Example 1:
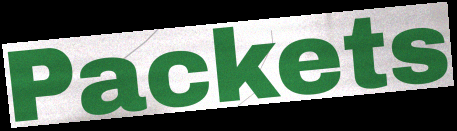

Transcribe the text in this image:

Packets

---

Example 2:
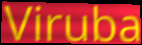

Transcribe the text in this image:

Viruba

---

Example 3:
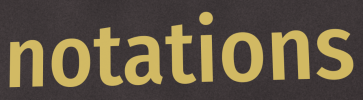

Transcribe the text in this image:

notations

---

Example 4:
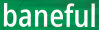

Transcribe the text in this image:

baneful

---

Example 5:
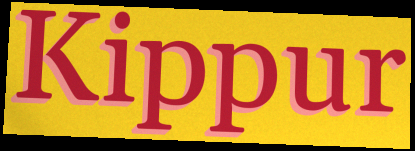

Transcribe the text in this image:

Kippur